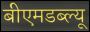
बीएमडब्ल्यू